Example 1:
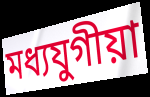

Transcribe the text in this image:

মধ্যযুগীয়া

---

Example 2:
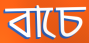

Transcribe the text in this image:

বাচে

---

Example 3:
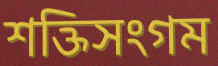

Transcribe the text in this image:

শক্তিসংগম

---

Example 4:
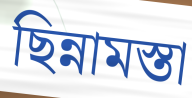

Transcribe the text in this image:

ছিন্নামস্তা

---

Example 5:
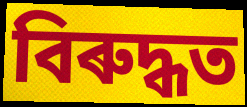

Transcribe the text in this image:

বিৰুদ্ধত